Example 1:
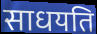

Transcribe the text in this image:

साधयति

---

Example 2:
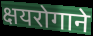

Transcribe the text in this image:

क्षयरोगाने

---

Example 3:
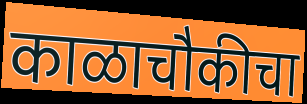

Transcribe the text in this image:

काळाचौकीचा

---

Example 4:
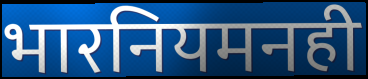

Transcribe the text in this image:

भारनियमनही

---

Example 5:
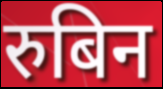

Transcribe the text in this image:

रुबिन